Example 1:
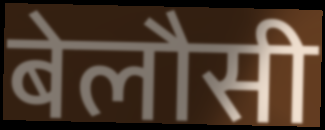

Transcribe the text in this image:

बेलौसी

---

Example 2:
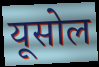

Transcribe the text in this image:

यूसोल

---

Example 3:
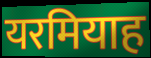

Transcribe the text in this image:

यरमियाह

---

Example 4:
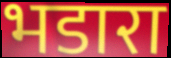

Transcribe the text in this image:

भडारा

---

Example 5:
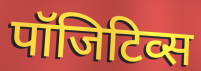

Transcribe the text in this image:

पॉजिटिव्स